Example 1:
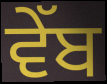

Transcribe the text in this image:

ਵੇੱਬ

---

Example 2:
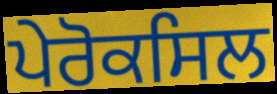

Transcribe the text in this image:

ਪੇਰੋਕਸਿਲ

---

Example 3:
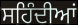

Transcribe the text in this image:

ਸਹਿੰਦੀਆਂ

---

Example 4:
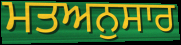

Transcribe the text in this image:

ਮਤਅਨੁਸਾਰ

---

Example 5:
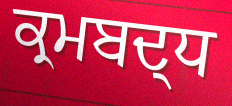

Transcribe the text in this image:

ਕ੍ਰਮਬਦ੍ਧ